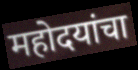
महोदयांचा